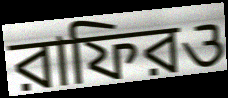
রাফিরও